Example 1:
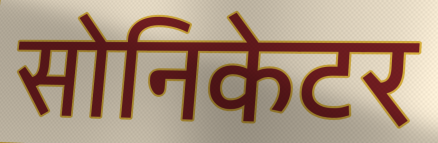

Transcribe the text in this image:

सोनिकेटर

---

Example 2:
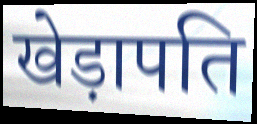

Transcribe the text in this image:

खेड़ापति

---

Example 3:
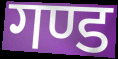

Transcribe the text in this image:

गण्ड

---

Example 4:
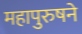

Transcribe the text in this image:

महापुरुषने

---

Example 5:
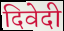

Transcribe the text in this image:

दिवेदी